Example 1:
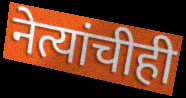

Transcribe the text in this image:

नेत्यांचीही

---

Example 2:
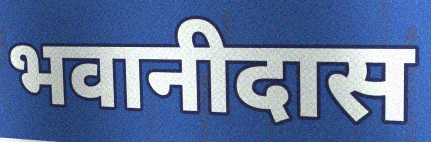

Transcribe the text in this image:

भवानीदास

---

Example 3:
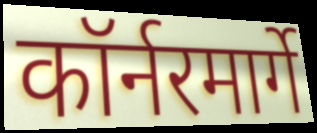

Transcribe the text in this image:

कॉर्नरमार्गे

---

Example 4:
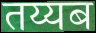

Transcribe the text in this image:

तय्यब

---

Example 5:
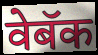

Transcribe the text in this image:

वेबॅक